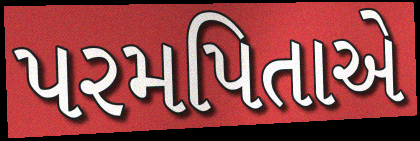
પરમપિતાએ